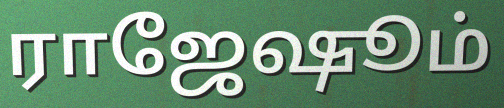
ராஜேஷூம்